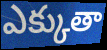
ఎక్కుతా